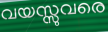
വയസ്സുവരെ